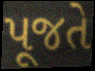
પૂજતે